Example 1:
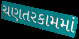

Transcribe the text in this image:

ચણતરકામમાં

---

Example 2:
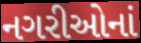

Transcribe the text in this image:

નગરીઓનાં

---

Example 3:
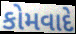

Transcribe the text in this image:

કોમવાદે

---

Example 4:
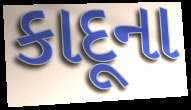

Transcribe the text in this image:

કાદૂના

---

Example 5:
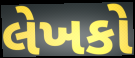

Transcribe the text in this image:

લેખકો